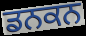
ਡਨਕਨ